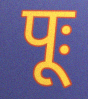
पूः